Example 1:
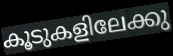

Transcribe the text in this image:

കൂടുകളിലേക്കു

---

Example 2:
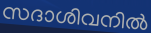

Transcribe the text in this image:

സദാശിവനിൽ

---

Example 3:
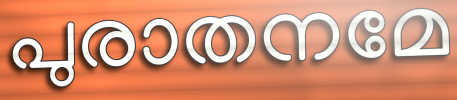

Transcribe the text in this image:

പുരാതനമേ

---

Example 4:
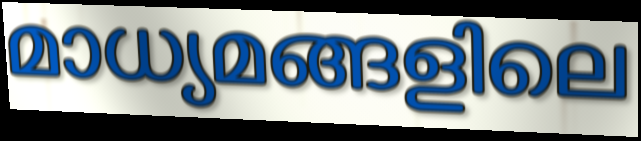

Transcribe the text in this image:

മാധ്യമങ്ങളിലെ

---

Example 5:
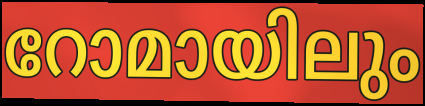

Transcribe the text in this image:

റോമായിലും